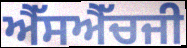
ਐੱਸਐੱਚਜੀ